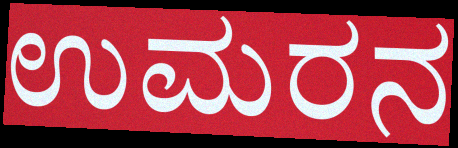
ಉಮರನ